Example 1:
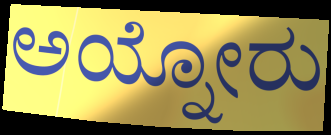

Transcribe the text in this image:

ಅಯ್ನೋರು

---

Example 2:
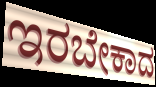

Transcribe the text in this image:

ಇರಬೇಕಾದ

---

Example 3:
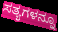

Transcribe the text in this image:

ಸತ್ಯಗಳನ್ನೂ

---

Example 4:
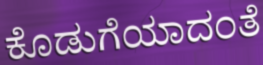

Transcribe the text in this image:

ಕೊಡುಗೆಯಾದಂತೆ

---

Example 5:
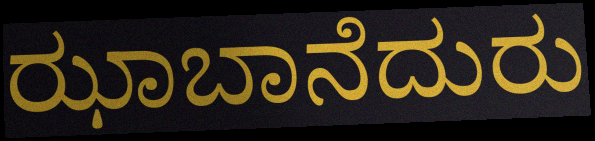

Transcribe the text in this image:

ಝಾಬಾನೆದುರು